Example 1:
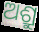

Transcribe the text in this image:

ଅଶ୍ରୁ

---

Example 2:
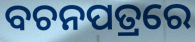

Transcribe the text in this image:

ବଚନପତ୍ରରେ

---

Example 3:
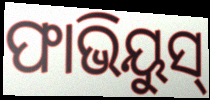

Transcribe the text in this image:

ଫାଭିୟୁସ୍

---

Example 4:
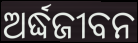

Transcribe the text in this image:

ଅର୍ଦ୍ଧଜୀବନ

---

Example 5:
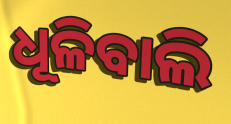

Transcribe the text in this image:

ଧୂଳିବାଲି